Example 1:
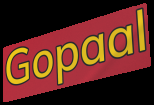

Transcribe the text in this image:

Gopaal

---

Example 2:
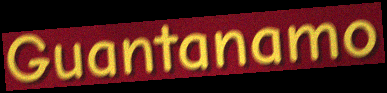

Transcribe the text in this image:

Guantanamo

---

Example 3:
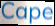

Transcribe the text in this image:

Cape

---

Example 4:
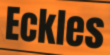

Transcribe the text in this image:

Eckles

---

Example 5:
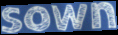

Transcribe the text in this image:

sown